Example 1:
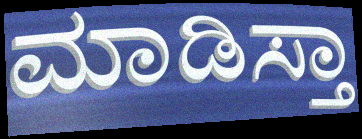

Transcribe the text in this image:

ಮಾಡಿಸ್ತಾ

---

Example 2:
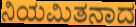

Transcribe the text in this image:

ನಿಯಮಿತನಾದ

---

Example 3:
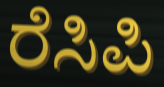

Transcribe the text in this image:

ರೆಸಿಪಿ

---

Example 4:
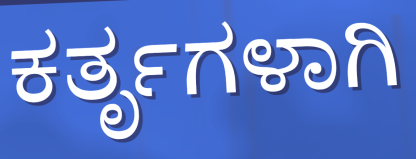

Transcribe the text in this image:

ಕರ್ತೃಗಳಾಗಿ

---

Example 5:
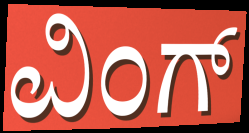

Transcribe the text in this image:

ವಿಂಗ್